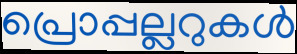
പ്രൊപ്പല്ലറുകൾ